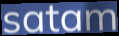
satam